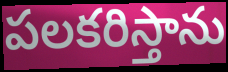
పలకరిస్తాను